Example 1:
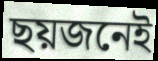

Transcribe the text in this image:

ছয়জনেই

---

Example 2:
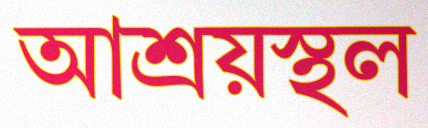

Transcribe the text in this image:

আশ্ৰয়স্থল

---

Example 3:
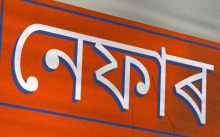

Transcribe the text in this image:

নেফাৰ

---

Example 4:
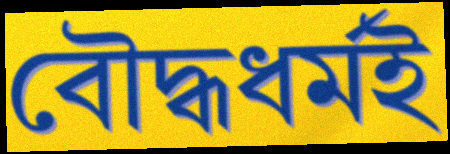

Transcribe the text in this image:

বৌদ্ধধৰ্মই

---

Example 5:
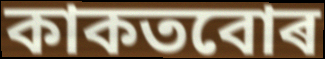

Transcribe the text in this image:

কাকতবোৰ